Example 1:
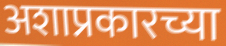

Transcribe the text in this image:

अशाप्रकारच्या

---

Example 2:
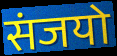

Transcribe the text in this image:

संजयो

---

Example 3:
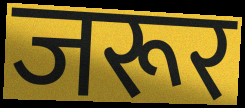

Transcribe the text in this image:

जरूर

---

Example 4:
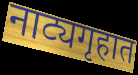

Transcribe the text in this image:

नाट्यगृहात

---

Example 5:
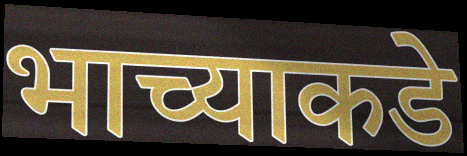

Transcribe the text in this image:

भाच्याकडे